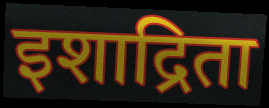
इशाद्रिता